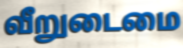
வீறுடைமை